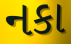
નકા